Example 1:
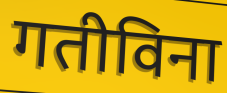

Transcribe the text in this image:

गतीविना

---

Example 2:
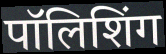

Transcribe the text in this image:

पॉलिशिंग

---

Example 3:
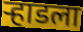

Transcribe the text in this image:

ऱ्हाडला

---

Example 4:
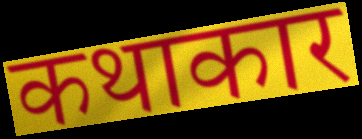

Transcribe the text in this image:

कथाकार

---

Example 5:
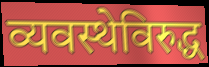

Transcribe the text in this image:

व्यवस्थेविरुद्ध